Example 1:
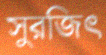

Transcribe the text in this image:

সুরজিৎ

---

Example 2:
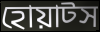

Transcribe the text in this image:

হোয়াট্স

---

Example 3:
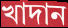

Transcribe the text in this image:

খাদান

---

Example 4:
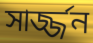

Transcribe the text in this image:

সার্জ্জন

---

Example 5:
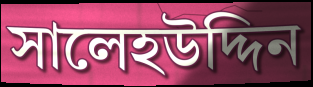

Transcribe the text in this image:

সালেহউদ্দিন